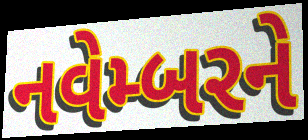
નવેમ્બરને